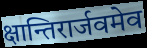
क्षान्तिरार्जवमेव